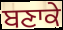
ਬਣਾਕੇ